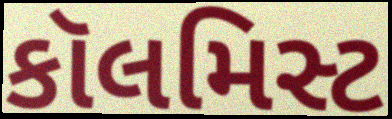
કૉલમિસ્ટ